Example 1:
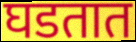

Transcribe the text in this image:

घडतात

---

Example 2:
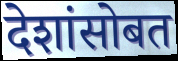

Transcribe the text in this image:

देशांसोबत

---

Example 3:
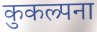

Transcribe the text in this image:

कुकल्पना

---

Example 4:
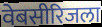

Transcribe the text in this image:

वेबसीरिजला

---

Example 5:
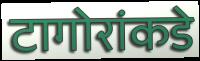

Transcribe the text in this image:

टागोरांकडे